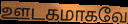
ஊடகமாகவே